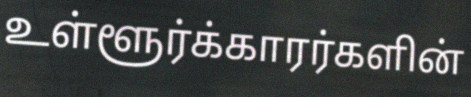
உள்ளூர்க்காரர்களின்